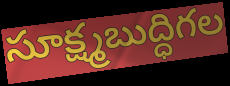
సూక్ష్మబుద్ధిగల